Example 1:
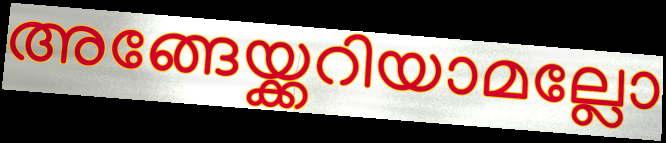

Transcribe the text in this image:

അങ്ങേയ്ക്കറിയാമല്ലോ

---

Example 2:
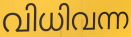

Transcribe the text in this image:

വിധിവന്ന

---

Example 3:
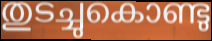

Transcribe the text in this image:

തുടച്ചുകൊണ്ടു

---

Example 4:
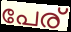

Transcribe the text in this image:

പേര്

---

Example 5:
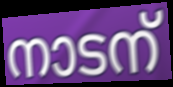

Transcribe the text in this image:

നാടന്